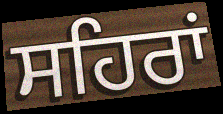
ਸਹਿਰਾਂ